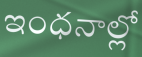
ఇంధనాల్లో